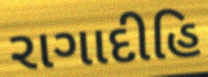
રાગાદીહિ